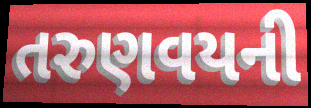
તરુણવયની